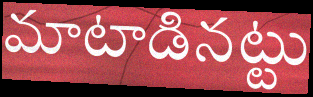
మాటాడినట్టు